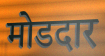
मोडदार